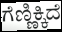
ಗೆಣ್ಣಿಕ್ಕಿದೆ